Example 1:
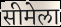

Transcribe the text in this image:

सीमेला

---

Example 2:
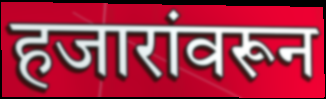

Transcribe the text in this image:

हजारांवरून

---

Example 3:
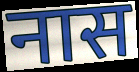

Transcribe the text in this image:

नास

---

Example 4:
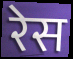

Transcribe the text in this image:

रेस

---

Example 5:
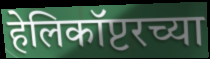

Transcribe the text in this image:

हेलिकॉप्टरच्या